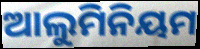
ଆଲୁମିନିୟମ